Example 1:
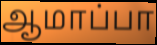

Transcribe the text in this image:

ஆமாப்பா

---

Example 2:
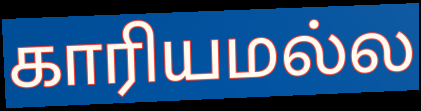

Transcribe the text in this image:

காரியமல்ல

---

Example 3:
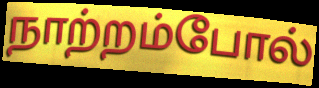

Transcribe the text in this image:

நாற்றம்போல்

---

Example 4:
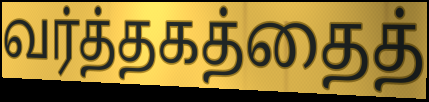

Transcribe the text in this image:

வர்த்தகத்தைத்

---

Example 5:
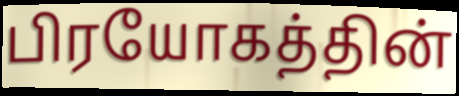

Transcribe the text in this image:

பிரயோகத்தின்